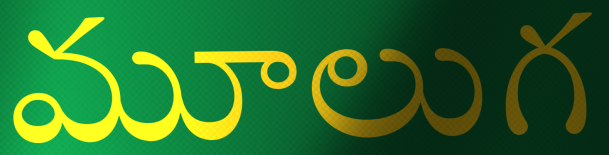
మూలుగ